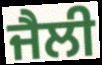
ਜੈਲੀ